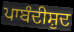
ਪਾਬੰਦੀਸ਼ੁਦ